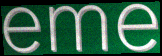
eme